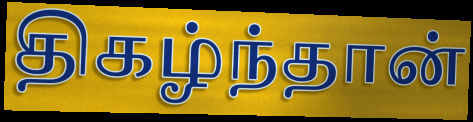
திகழ்ந்தான்